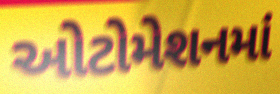
ઓટોમેશનમાં